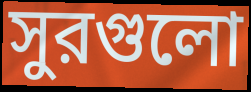
সুরগুলো